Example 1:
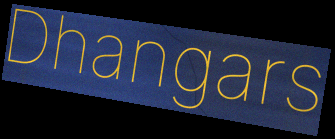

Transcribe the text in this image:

Dhangars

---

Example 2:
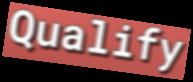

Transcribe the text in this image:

Qualify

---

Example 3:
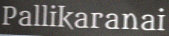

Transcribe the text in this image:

Pallikaranai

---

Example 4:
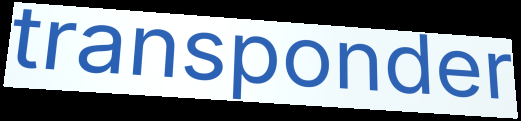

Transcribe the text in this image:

transponder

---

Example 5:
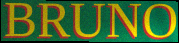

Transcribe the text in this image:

BRUNO